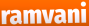
ramvani